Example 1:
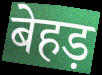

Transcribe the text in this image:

बेहड़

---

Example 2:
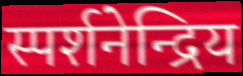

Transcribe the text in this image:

स्पर्शनेन्द्रिय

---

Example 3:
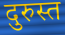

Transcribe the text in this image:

दुरुस्त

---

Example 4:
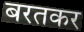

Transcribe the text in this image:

बरतकर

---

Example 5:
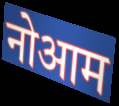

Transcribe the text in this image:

नोआम